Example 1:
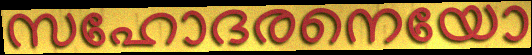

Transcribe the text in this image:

സഹോദരനെയോ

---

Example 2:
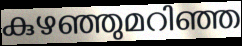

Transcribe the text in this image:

കുഴഞ്ഞുമറിഞ്ഞ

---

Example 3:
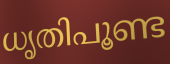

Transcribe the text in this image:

ധൃതിപൂണ്ട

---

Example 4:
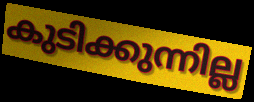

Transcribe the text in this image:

കുടിക്കുന്നില്ല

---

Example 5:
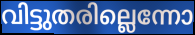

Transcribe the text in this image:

വിട്ടുതരില്ലെന്നോ